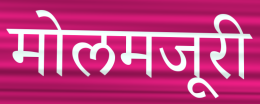
मोलमजूरी